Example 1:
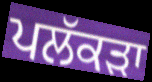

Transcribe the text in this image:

ਪਲੱਕੜਾ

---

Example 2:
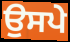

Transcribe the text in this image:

ਉਸਪੇ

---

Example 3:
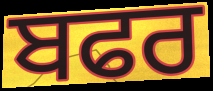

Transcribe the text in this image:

ਬਫਰ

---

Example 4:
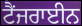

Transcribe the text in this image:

ਟੈਂਜਰਾਈਨ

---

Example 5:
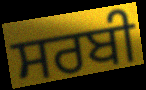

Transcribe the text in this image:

ਸਰਬੀ